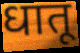
धातू